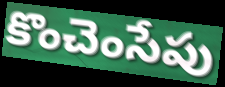
కొంచెంసేపు